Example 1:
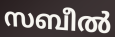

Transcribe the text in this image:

സബീൽ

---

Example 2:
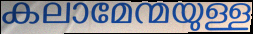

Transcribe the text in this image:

കലാമേന്മയുള്ള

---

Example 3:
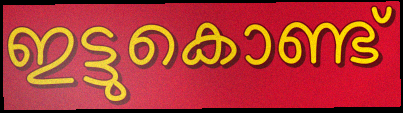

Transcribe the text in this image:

ഇട്ടുകൊണ്ട്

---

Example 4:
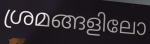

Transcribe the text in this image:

ശ്രമങ്ങളിലോ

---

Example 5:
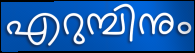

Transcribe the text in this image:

എറുമ്പിനും